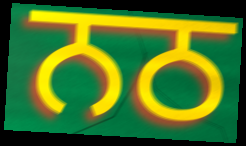
ਨਠ